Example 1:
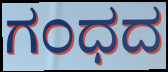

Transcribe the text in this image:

ಗಂಧದ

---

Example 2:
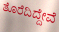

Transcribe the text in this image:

ತೊರೆದಿದ್ದೇವೆ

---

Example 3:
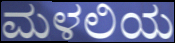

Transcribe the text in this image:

ಮಳಲಿಯ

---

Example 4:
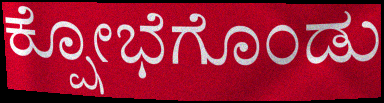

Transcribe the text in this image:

ಕ್ಷೋಭೆಗೊಂಡು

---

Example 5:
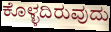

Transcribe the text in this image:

ಕೊಳ್ಳದಿರುವುದು